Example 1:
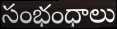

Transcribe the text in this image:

సంభంధాలు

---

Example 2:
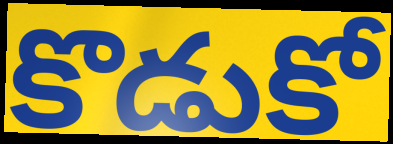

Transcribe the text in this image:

కొడుకో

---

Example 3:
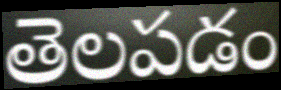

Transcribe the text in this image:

తెలపడం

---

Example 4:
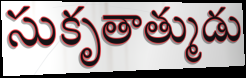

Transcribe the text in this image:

సుకృతాత్ముడు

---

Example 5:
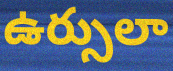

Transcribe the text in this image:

ఉర్సులా